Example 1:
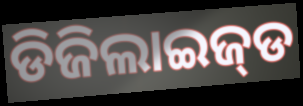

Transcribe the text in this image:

ଡିଜିଲାଇଜ୍‌ଡ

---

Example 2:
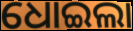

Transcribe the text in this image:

ଧୋଇଲା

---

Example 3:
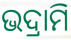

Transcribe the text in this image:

ଭଦ୍ରାମି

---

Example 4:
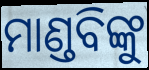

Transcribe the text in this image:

ମାଣ୍ଡବିଙ୍କୁ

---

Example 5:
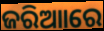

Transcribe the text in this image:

ଜରିଆାରେ